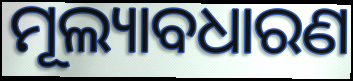
ମୂଲ୍ୟାବଧାରଣ